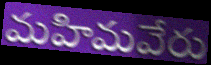
మహిమవేరు